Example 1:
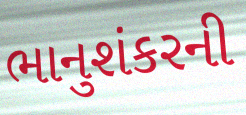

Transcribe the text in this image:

ભાનુશંકરની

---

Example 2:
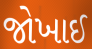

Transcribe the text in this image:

જોખાઈ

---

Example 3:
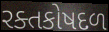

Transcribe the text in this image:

રક્તકોષદળ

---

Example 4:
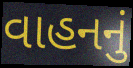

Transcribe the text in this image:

વાહનનું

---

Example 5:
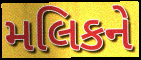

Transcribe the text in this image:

મલિકને